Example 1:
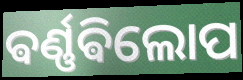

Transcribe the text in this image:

ଵର୍ଣ୍ଣଵିଲୋପ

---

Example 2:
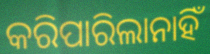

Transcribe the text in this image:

କରିପାରିଲାନାହିଁ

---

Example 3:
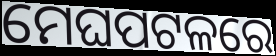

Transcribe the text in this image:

ମେଘପଟଳରେ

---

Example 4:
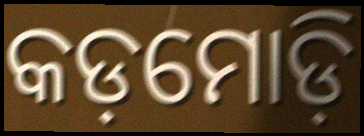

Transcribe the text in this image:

କଡ଼ମୋଡ଼ି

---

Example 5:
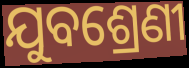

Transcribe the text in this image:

ଯୁବଶ୍ରେଣୀ